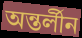
অন্তর্লীন